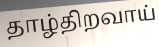
தாழ்திறவாய்